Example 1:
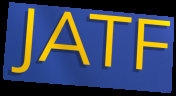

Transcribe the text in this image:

JATF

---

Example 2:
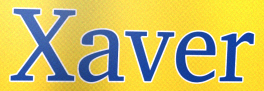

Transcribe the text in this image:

Xaver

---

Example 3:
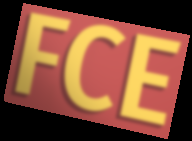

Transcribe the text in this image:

FCE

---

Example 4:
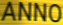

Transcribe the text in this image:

ANNO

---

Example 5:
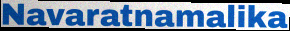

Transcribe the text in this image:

Navaratnamalika